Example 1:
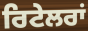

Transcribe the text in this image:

ਰਿਟੇਲਰਾਂ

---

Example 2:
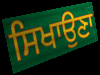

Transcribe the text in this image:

ਸਿਖਾਉਣਾ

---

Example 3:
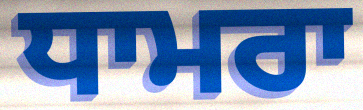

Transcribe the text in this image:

ਧਾਮਰਾ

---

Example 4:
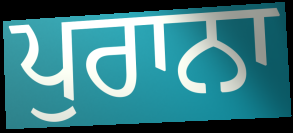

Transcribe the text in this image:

ਪੁਰਾਨਾ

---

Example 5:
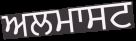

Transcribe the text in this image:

ਅਲਮਾਸਟ